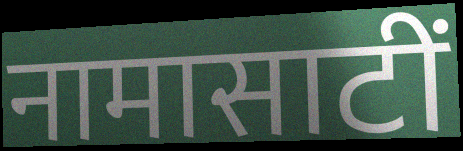
नामासाटीं